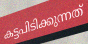
കട്ടപിടിക്കുന്നത്